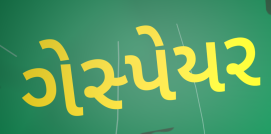
ગેસ્પેયર